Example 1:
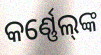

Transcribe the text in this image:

କର୍ଣ୍ଣେଲ୍‌ଙ୍କ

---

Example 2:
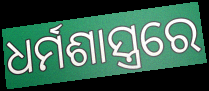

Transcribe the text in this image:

ଧର୍ମଶାସ୍ତ୍ରରେ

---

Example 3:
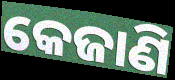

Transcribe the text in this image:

କେଜାଣି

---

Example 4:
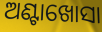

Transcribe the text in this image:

ଅଣ୍ଟାଖୋସା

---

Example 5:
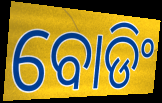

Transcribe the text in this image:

ବୋଡିଂ